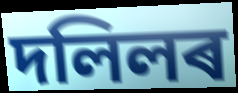
দলিলৰ